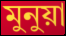
মুনুয়া